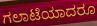
ಗಲಾಟೆಯಾದರೂ